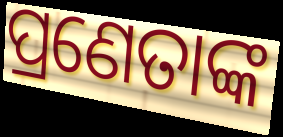
ପ୍ରଣେତାଙ୍କ